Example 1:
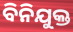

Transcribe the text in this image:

ବିନିଯୁକ୍ତ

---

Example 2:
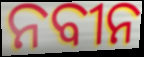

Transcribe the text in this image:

ନବୀନ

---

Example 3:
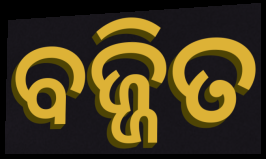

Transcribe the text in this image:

ବଜ୍ଜିତ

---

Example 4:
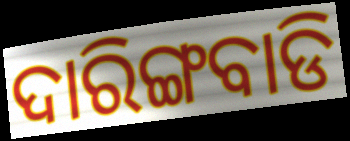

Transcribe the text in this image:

ଦାରିଙ୍ଗବାଡି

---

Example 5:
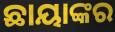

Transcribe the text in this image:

ଛାୟାଙ୍କର